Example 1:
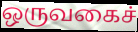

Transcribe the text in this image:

ஒருவகைச்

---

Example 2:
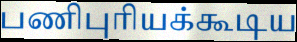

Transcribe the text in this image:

பணிபுரியக்கூடிய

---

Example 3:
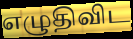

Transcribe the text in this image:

எழுதிவிட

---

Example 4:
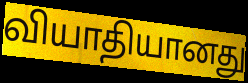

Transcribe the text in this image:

வியாதியானது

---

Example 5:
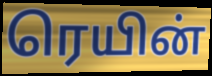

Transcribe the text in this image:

ரெயின்